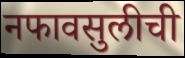
नफावसुलीची